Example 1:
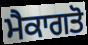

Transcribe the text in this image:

ਮੈਕਾਗਤੋ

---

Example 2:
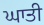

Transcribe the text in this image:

ਘਾਤੀ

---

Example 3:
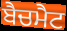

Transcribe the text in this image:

ਬੈਚਮੈਟ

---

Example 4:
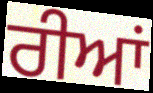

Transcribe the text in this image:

ਰੀਆਂ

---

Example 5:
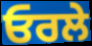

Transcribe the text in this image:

ਓਰਲੇ